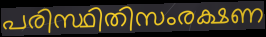
പരിസ്ഥിതിസംരക്ഷണ